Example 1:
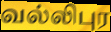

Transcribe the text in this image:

வல்லிபுர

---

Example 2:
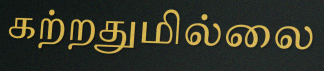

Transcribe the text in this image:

கற்றதுமில்லை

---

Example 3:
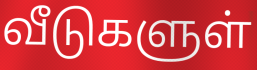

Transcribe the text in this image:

வீடுகளுள்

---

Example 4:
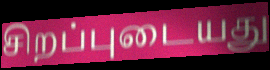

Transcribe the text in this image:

சிறப்புடையது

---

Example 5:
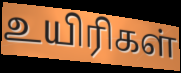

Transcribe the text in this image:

உயிரிகள்